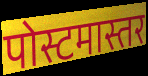
पोस्टमास्तर